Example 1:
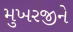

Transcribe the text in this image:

મુખરજીને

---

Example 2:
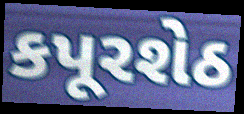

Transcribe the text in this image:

કપૂરશેઠ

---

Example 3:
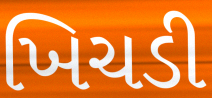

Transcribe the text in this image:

ખિચડી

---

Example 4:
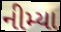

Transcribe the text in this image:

નીમ્યા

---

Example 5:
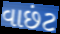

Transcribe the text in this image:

વાછંટ